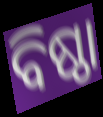
ବିଷ୍ଠା